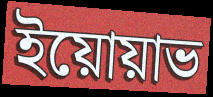
ইয়োয়াভ